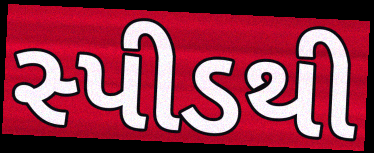
સ્પીડથી